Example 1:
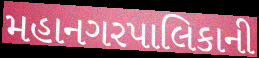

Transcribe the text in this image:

મહાનગરપાલિકાની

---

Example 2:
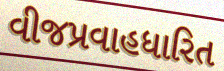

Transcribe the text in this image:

વીજપ્રવાહધારિત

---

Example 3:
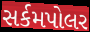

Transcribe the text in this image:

સર્કમપોલર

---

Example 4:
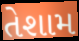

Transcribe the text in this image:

તેશામ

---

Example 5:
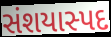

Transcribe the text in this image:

સંશયાસ્પદ